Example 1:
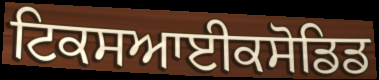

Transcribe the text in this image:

ਟਿਕਸਆਈਕਸੋਡਿਡ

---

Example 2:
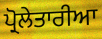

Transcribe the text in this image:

ਪ੍ਰੋਲੇਤਾਰੀਆ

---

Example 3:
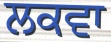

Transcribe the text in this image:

ਲਕਵਾ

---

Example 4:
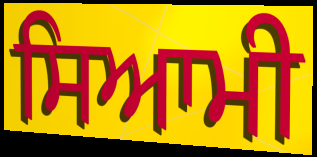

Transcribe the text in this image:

ਸਿਆਮੀ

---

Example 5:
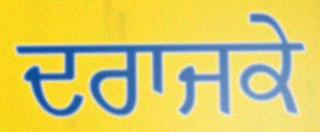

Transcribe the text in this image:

ਦਰਾਜਕੇ